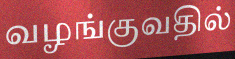
வழங்குவதில்